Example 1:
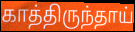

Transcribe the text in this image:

காத்திருந்தாய்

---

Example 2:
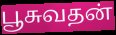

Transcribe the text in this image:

பூசுவதன்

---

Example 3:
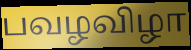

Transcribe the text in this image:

பவழவிழா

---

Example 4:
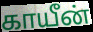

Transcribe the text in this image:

காயீன்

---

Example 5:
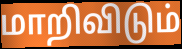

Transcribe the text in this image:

மாறிவிடும்